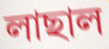
লাছাল